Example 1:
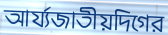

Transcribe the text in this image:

আর্য্যজাতীয়দিগের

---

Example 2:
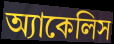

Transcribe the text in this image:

অ্যাকেলিস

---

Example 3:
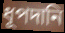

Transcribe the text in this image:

ধূপদানি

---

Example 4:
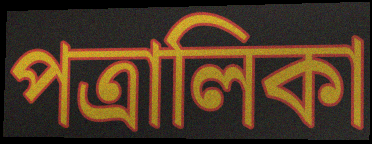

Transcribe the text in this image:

পত্রালিকা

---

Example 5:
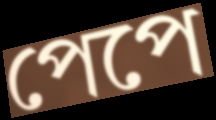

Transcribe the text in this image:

পেপে